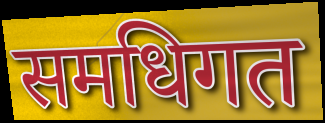
समधिगत